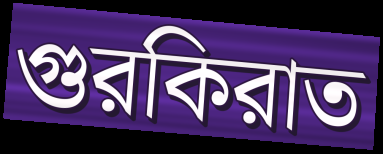
গুরকিরাত